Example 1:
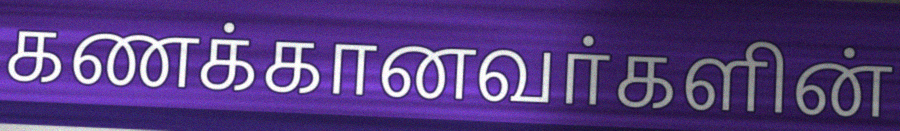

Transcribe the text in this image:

கணக்கானவர்களின்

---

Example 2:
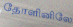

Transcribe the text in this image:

தோளினிலே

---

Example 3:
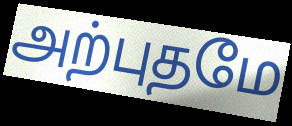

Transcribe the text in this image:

அற்புதமே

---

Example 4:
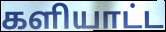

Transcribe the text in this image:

களியாட்ட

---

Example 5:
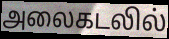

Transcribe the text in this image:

அலைகடலில்